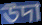
উদা